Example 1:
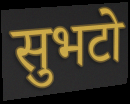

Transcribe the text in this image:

सुभटो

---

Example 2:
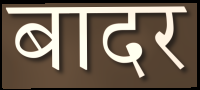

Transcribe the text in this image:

बादर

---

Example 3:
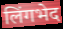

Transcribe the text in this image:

लिंगभेद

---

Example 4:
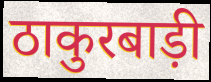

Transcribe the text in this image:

ठाकुरबाड़ी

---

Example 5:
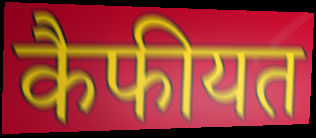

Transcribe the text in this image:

कैफीयत